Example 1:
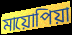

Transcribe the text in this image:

মায়োপিয়া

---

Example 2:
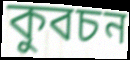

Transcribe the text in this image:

কুবচন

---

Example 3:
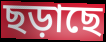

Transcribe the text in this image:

ছড়াছে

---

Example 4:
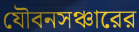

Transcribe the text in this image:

যৌবনসঞ্চারের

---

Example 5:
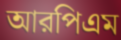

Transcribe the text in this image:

আরপিএম